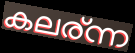
കലര്ന്ന